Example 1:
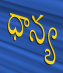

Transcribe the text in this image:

ధాన్య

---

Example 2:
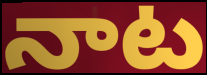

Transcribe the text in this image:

నాట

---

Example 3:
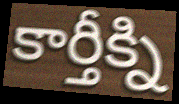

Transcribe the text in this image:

కార్తీక్ని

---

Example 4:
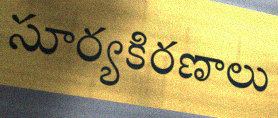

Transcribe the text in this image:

సూర్యకిరణాలు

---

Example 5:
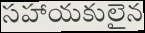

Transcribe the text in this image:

సహాయకులైన